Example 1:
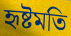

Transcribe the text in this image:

হৃষ্টমতি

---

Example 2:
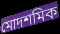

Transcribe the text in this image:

মোদশমিক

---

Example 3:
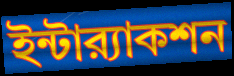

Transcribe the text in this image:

ইন্টার‍্যাকশন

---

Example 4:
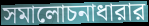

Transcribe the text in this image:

সমালোচনাধারার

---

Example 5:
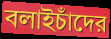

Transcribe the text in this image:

বলাইচাঁদের